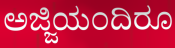
ಅಜ್ಜಿಯಂದಿರೂ